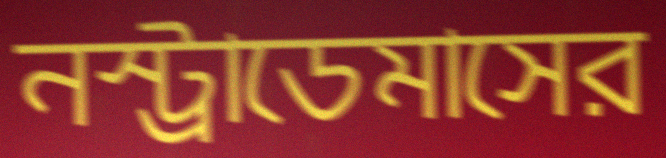
নস্ট্রাডেমাসের